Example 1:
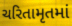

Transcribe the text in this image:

ચરિતામૃતમાં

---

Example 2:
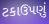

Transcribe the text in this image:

ટકાઉપણું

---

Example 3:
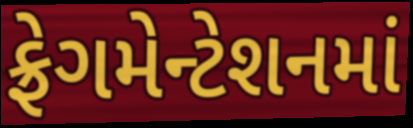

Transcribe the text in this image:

ફ્રેગમેન્ટેશનમાં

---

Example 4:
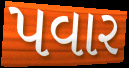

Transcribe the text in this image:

પવાર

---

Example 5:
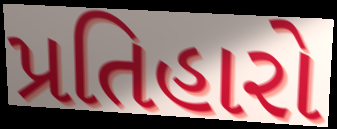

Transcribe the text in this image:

પ્રતિહારો